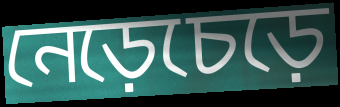
নেড়েচেড়ে